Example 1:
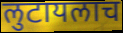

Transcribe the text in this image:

लुटायलाच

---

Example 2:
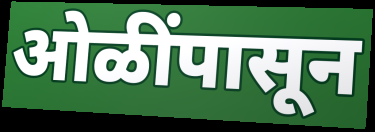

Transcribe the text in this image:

ओळींपासून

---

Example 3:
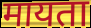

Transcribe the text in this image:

मायता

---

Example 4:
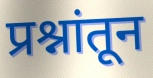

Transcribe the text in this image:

प्रश्नांतून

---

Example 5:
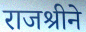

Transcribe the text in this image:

राजश्रीने